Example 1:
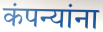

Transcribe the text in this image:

कंपन्यांना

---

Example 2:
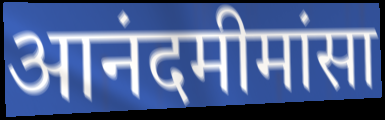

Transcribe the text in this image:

आनंदमीमांसा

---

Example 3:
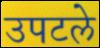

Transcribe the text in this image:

उपटले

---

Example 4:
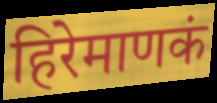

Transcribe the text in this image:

हिरेमाणकं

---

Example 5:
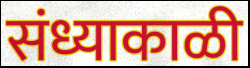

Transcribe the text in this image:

संध्याकाळी